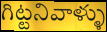
గిట్టనివాళ్ళు